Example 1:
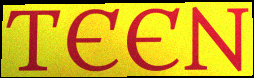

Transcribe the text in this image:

TEEN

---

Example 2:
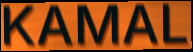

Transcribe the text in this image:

KAMAL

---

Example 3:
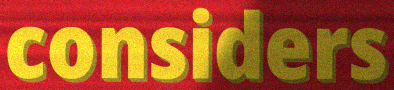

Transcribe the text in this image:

considers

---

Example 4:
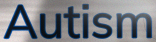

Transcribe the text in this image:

Autism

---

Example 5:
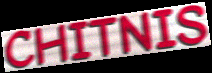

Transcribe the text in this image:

CHITNIS